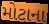
મોટાના